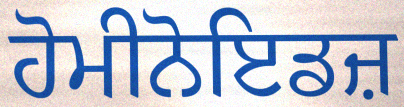
ਹੋਮੀਨੋਇਡਜ਼